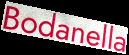
Bodanella